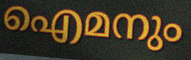
ഐമനും